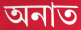
অনাত